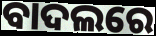
ବାଦଲରେ